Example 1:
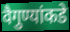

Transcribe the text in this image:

वैगुण्यांकडे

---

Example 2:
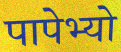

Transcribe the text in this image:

पापेभ्यो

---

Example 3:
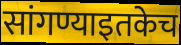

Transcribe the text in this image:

सांगण्याइतकेच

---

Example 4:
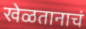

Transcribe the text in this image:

खेळतानाचं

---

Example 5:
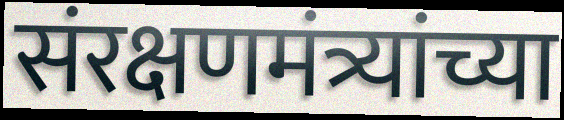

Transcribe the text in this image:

संरक्षणमंत्र्यांच्या